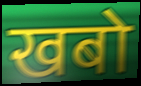
खबो